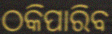
ଠକିପାରିବ